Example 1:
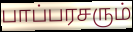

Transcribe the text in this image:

பாப்பரசரும்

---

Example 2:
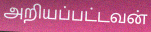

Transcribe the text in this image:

அறியப்பட்டவன்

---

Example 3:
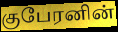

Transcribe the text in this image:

குபேரனின்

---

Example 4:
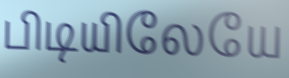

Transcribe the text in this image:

பிடியிலேயே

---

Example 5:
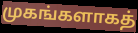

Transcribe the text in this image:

முகங்களாகத்